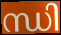
ന്ധി